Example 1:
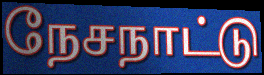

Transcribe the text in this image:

நேசநாட்டு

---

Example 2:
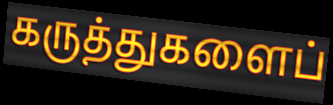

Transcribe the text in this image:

கருத்துகளைப்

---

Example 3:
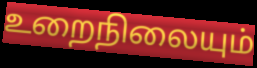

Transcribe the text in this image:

உறைநிலையும்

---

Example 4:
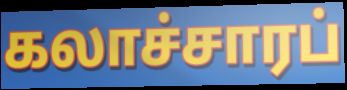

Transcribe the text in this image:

கலாச்சாரப்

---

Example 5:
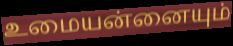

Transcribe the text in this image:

உமையன்னையும்